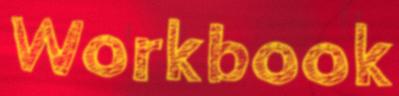
Workbook